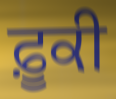
ਫ਼ੂਕੀ